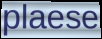
plaese